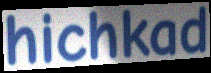
hichkad